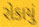
રોકાયું